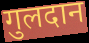
गुलदान